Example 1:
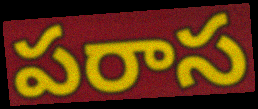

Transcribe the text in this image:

పరాస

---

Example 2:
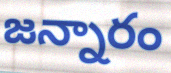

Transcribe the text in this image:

జన్నారం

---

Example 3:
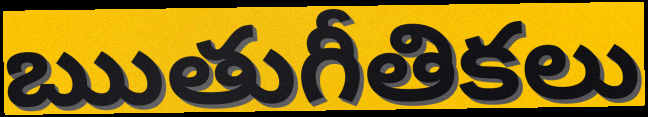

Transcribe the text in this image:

ఋతుగీతికలు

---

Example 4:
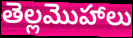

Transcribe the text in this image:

తెల్లమొహాలు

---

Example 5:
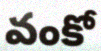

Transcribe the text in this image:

వంకో